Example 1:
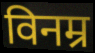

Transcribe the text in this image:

विनम्र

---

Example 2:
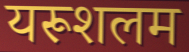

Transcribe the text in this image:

यरूशलम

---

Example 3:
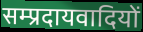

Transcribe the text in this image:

सम्प्रदायवादियों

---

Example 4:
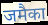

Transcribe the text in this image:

जमैका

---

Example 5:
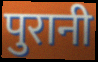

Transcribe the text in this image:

पुरानी